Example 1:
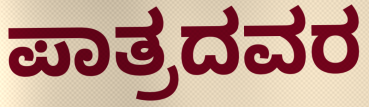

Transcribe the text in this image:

ಪಾತ್ರದವರ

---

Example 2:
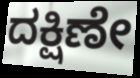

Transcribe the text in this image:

ದಕ್ಷಿಣೇ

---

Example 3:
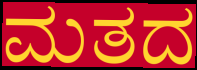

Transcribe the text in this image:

ಮತದ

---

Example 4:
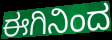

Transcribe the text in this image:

ಈಗಿನಿಂದ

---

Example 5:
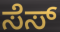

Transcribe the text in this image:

ಸೆಸ್